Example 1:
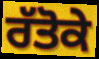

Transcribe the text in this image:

ਰੱਤੋਕੇ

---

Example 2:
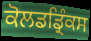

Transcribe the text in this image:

ਕੋਲਡਡ੍ਰਿੰਕਸ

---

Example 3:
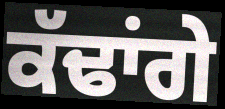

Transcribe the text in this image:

ਕੱਢਾਂਗੇ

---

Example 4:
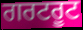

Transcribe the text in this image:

ਗਰਟਰੂਟ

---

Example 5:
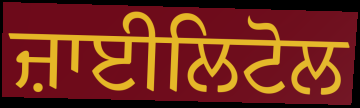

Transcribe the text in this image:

ਜ਼ਾਈਲਿਟੋਲ